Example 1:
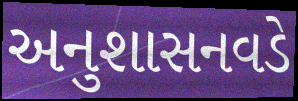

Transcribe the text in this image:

અનુશાસનવડે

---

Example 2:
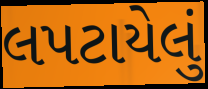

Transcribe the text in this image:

લપટાયેલું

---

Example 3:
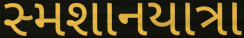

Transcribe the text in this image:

સ્મશાનયાત્રા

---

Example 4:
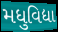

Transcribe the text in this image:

મધુવિદ્યા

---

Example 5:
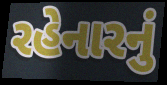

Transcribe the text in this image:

રહેનારનું